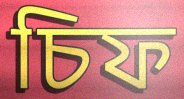
চিফ